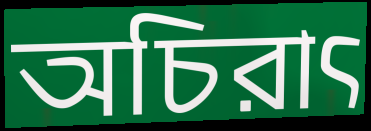
অচিরাৎ